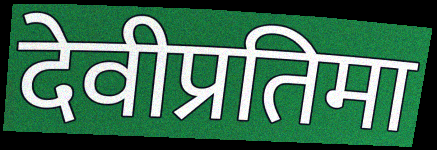
देवीप्रतिमा